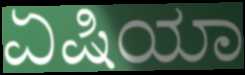
ಏಷಿಯಾ